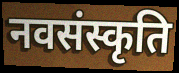
नवसंस्कृति